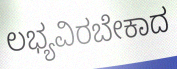
ಲಭ್ಯವಿರಬೇಕಾದ